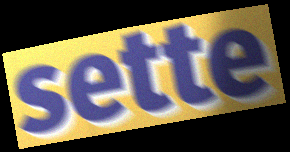
sette